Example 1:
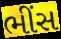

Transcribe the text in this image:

ભીંસ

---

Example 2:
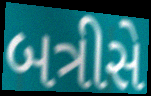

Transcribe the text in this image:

બત્રીસે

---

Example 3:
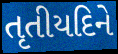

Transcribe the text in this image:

તૃતીયદિને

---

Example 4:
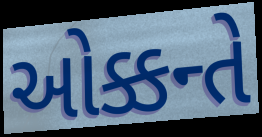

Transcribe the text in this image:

ઓક્કન્તે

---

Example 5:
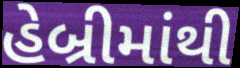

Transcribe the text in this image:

હેબ્રીમાંથી